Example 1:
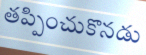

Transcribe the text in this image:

తప్పించుకొనడు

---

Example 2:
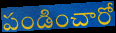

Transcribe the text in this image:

పండించారో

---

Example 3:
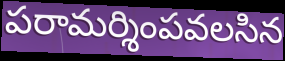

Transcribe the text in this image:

పరామర్శింపవలసిన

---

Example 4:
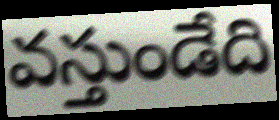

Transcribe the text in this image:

వస్తుండేది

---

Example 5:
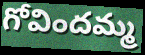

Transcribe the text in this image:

గోవిందమ్మ